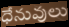
ధేనువులు